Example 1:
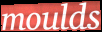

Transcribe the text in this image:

moulds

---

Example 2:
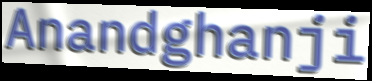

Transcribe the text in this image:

Anandghanji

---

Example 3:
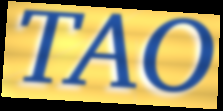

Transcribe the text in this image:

TAO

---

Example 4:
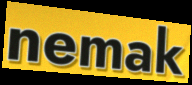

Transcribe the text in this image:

nemak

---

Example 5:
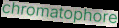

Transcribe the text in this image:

chromatophore